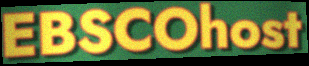
EBSCOhost